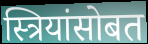
स्त्रियांसोबत